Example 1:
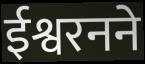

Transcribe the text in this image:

ईश्वरनने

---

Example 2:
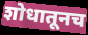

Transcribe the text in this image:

शोधातूनच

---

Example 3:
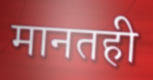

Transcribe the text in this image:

मानतही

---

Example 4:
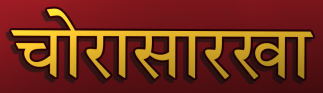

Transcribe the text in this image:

चोरासारखा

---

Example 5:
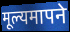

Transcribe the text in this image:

मूल्यमापने